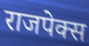
राजपेक्स